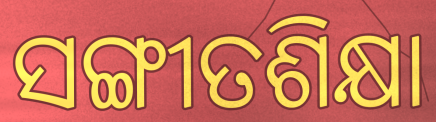
ସଙ୍ଗୀତଶିକ୍ଷା